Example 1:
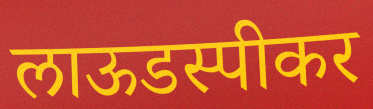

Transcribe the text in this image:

लाऊडस्पीकर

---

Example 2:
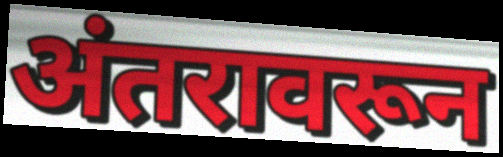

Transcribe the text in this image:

अंतरावरून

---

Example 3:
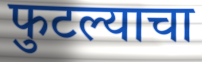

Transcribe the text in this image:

फुटल्याचा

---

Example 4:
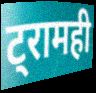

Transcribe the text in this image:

ट्रामही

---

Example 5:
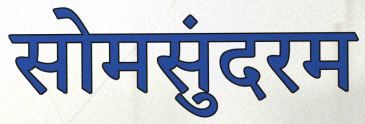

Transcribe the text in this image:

सोमसुंदरम